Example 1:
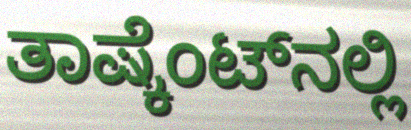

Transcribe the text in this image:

ತಾಷ್ಕೆಂಟ್‌ನಲ್ಲಿ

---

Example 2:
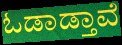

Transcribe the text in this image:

ಓಡಾಡ್ತಾವೆ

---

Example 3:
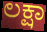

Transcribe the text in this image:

ಲಕ್ಷಾ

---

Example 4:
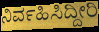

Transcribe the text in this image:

ನಿರ್ವಹಿಸಿದ್ದೀರಿ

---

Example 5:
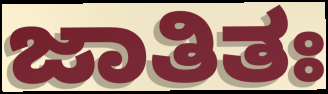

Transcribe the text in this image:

ಜಾತಿತಃ